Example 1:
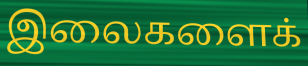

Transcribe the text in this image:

இலைகளைக்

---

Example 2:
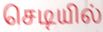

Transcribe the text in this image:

செடியில்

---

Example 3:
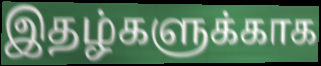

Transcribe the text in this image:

இதழ்களுக்காக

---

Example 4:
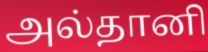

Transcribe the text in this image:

அல்தானி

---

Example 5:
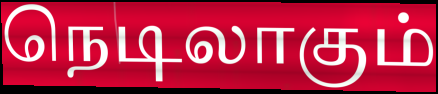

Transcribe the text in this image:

நெடிலாகும்